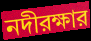
নদীরক্ষার